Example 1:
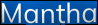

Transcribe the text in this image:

Mantha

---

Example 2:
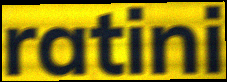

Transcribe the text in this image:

ratini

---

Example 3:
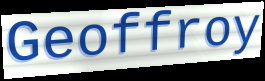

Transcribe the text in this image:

Geoffroy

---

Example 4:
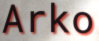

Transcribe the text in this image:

Arko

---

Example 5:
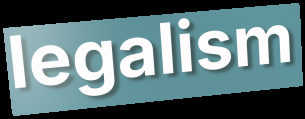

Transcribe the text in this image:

legalism